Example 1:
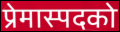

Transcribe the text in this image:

प्रेमास्पदको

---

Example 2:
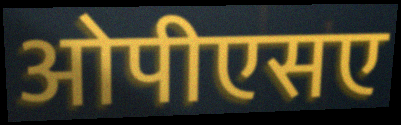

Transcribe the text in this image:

ओपीएसए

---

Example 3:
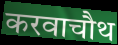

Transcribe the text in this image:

करवाचौथ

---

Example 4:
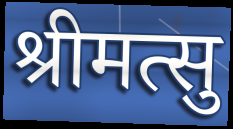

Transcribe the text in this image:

श्रीमत्सु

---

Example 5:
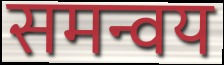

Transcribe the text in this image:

समन्वय